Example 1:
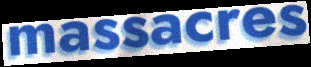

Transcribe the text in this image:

massacres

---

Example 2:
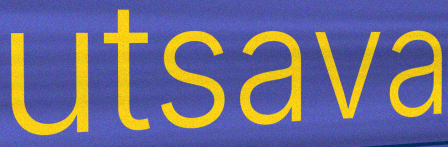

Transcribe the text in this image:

utsava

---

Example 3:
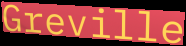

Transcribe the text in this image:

Greville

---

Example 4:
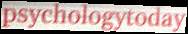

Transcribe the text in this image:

psychologytoday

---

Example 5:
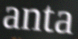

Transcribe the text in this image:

anta